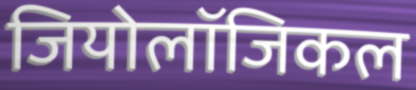
जियोलॉजिकल